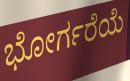
ಭೋರ್ಗರೆಯೆ